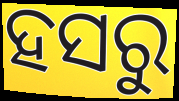
ହସରୁ